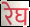
रेघ